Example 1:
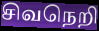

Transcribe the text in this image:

சிவநெறி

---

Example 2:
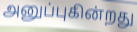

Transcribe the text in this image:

அனுப்புகின்றது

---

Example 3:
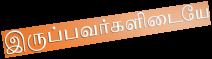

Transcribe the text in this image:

இருப்பவர்களிடையே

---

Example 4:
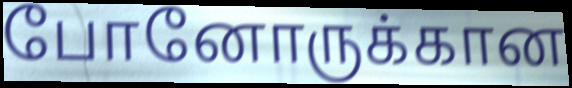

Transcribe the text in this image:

போனோருக்கான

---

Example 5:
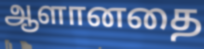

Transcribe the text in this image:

ஆளானதை